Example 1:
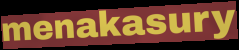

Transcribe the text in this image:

menakasury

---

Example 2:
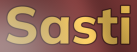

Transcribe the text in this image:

Sasti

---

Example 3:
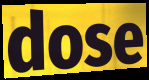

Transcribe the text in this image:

dose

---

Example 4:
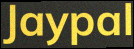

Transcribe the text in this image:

Jaypal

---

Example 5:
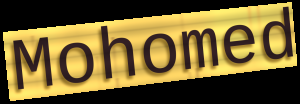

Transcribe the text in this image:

Mohomed